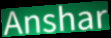
Anshar